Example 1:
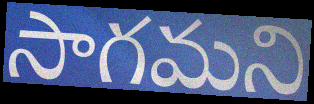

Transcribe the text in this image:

సాగమని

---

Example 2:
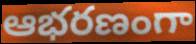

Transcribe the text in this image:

ఆభరణంగా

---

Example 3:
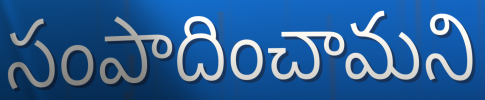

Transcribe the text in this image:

సంపాదించామని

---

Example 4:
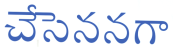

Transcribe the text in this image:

చేసెననగా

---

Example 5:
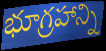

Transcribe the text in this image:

భూగ్రహాన్ని